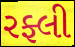
રફ્લી